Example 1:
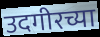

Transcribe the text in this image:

उदगीरच्या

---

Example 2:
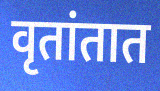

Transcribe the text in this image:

वृतांतात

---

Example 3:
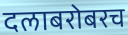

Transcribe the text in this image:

दलाबरोबरच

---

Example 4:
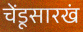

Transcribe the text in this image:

चेंडूसारखं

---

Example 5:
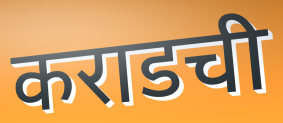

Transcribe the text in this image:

कराडची